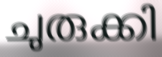
ചുരുക്കി